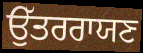
ਉੱਤਰਰਾਯਣ